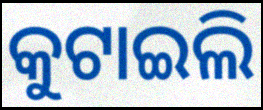
କୁଟାଇଲି